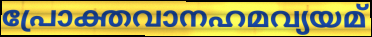
പ്രോക്തവാനഹമവ്യയമ്